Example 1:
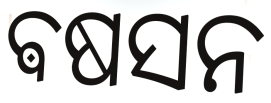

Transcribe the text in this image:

ଵଷସନ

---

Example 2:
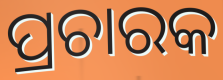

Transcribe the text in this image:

ପ୍ରଚାରକ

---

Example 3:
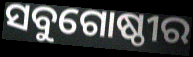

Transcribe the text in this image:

ସବୁଗୋଷ୍ଠୀର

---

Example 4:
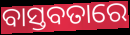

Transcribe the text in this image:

ବାସ୍ତବତାରେ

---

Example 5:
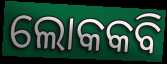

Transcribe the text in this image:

ଲୋକକବି